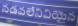
నడవలేనివియైన